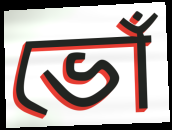
ভোঁ